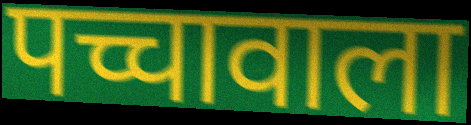
पच्चावाला